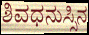
ಶಿವಧನುಸ್ಸಿನ